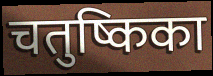
चतुष्किका